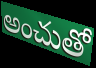
అంచుతో